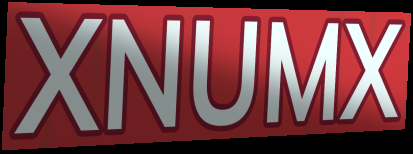
XNUMX